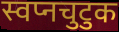
स्वप्नचुटुक